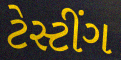
ટેસ્ટીંગ